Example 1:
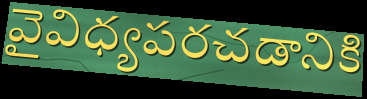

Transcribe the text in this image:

వైవిధ్యపరచడానికి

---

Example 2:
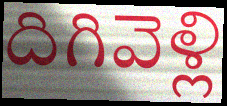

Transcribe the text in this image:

దిగివెళ్లి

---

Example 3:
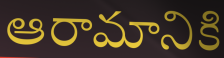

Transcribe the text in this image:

ఆరామానికి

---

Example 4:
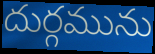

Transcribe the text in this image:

దుర్గమును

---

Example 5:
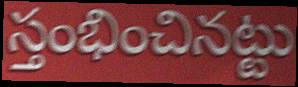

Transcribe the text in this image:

స్తంభించినట్టు